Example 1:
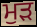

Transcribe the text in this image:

ਮੁੜ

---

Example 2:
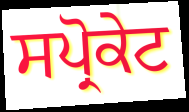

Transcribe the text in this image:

ਸਪ੍ਰੋਕੇਟ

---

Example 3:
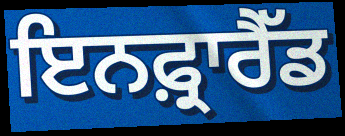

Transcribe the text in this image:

ਇਨਫ਼੍ਰਾਰੈੱਡ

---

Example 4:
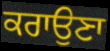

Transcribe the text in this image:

ਕਰਾਉਣਾ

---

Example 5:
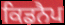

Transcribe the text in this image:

ਕਿਡਨੈਪ